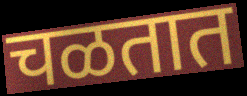
चळतात